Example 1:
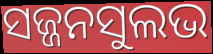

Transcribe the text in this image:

ସଜ୍ଜନସୁଲଭ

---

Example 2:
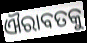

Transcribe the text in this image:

ଐରାବତକୁ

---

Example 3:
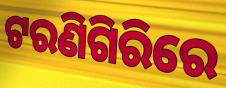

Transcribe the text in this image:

ଟରଣିଗିରିରେ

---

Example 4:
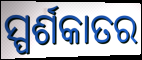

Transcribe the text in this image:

ସ୍ପର୍ଶକାତର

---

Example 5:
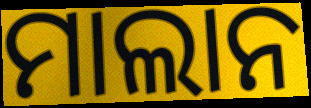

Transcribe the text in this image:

ମାଲାନ